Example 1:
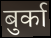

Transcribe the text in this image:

बुर्का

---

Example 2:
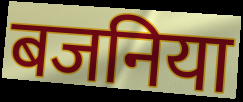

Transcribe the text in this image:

बजनिया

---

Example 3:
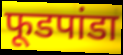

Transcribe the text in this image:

फूडपांडा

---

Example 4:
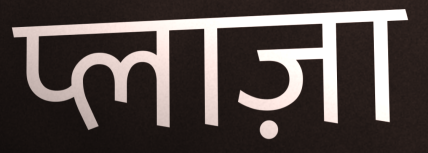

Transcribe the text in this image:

प्लाज़ा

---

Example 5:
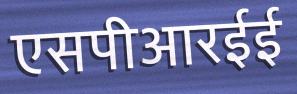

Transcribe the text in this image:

एसपीआरईई